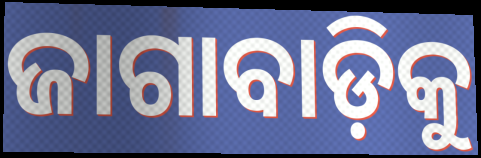
ଜାଗାବାଡ଼ିକୁ